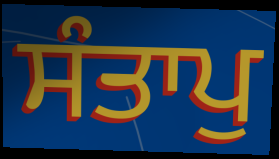
ਸੰਤਾਪੁ